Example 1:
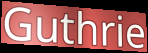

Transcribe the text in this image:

Guthrie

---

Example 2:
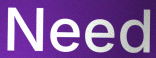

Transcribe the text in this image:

Need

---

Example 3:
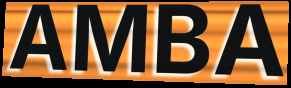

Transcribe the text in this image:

AMBA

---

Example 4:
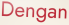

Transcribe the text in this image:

Dengan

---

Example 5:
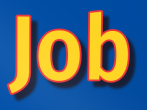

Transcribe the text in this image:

Job